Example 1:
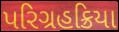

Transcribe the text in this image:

પરિગ્રહક્રિયા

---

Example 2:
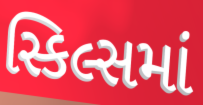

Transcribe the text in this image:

સ્કિલ્સમાં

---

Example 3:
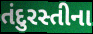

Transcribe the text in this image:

તંદુરસ્તીના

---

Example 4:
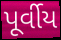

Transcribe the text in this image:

પૂર્વીય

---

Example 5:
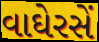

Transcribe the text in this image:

વાઘેરસેં